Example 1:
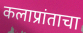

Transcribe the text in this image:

कलाप्रांताचा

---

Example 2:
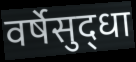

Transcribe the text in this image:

वर्षेसुद्धा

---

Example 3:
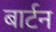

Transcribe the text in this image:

बार्टन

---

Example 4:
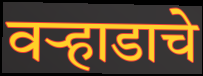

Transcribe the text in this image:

वऱ्हाडाचे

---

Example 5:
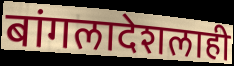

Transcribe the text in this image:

बांगलादेशलाही